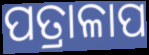
ପତ୍ରାଳାପ